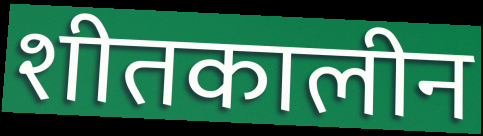
शीतकालीन